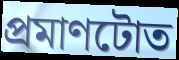
প্ৰমাণটোত